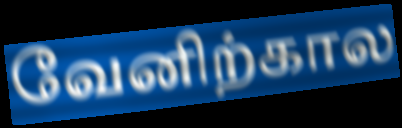
வேனிற்கால